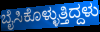
ಬೈಸಿಕೊಳ್ಳುತ್ತಿದ್ದಳು